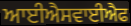
ਆਈਐਸਵਾਈਐਫ